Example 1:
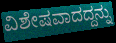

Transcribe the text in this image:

ವಿಶೇಷವಾದದ್ದನ್ನು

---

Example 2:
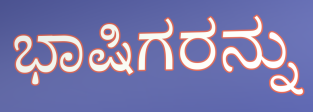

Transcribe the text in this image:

ಭಾಷಿಗರನ್ನು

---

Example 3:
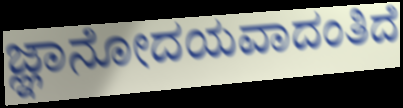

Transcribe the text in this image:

ಜ್ಞಾನೋದಯವಾದಂತಿದೆ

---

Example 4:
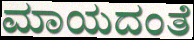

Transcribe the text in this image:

ಮಾಯದಂತೆ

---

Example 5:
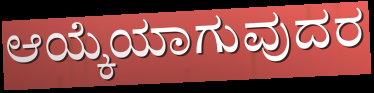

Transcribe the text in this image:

ಆಯ್ಕೆಯಾಗುವುದರ